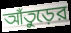
আঁতুড়ের